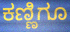
ಕಣ್ಣಿಗೂ